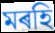
মৰহি